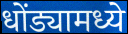
धोंड्यामध्ये